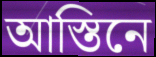
আস্তিনে